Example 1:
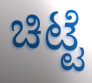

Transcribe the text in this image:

ಚಿಟ್ಟೆ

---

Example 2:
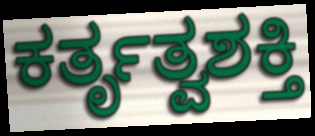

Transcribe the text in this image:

ಕರ್ತೃತ್ವಶಕ್ತಿ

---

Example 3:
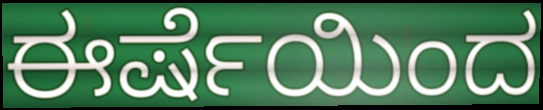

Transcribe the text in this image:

ಈರ್ಷೆಯಿಂದ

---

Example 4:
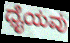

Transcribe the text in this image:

ಧೈಯವು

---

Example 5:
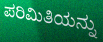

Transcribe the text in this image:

ಪರಿಮಿತಿಯನ್ನು